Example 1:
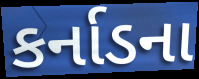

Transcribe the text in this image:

કર્નાડના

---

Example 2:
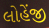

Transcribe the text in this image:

લોહેંજી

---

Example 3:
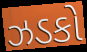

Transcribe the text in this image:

ઝડકો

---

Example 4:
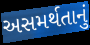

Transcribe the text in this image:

અસમર્થતાનું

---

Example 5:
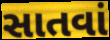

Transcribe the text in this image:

સાતવાં